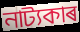
নাট্যকাৰ